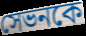
সেভনকে